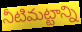
నీటిమట్టాన్ని